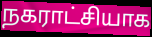
நகராட்சியாக